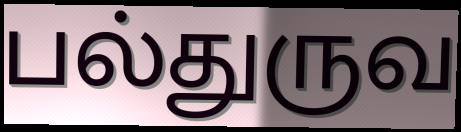
பல்துருவ